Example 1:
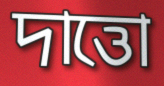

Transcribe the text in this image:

দাত্তো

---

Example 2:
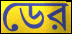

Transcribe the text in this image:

ডের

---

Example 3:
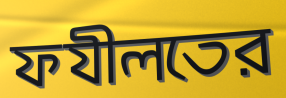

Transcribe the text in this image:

ফযীলতের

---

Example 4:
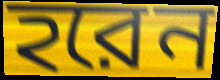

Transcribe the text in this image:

হরেন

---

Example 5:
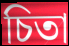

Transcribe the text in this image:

চিতা